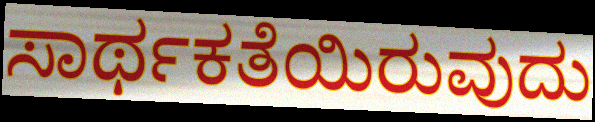
ಸಾರ್ಥಕತೆಯಿರುವುದು